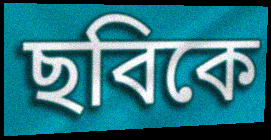
ছবিকে